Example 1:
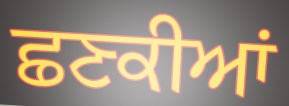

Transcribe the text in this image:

ਛਣਕੀਆਂ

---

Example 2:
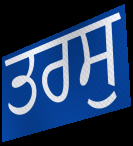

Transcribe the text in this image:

ਤਰਸੁ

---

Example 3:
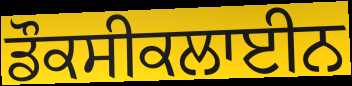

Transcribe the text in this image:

ਡੌਕਸੀਕਲਾਈਨ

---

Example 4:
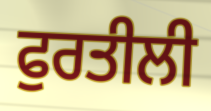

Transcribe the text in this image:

ਫੁਰਤੀਲੀ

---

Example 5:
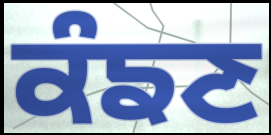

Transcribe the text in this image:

ਕੰਙਣ